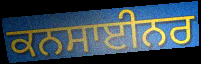
ਕਨਸਾਈਨਰ